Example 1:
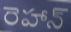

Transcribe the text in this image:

రెహాన్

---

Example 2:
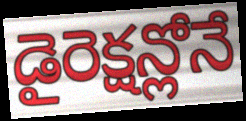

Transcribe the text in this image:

డైరెక్షన్లోనే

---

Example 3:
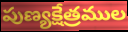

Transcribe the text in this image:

పుణ్యక్షేత్రముల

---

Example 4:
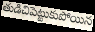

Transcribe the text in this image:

తుడిచిపెట్టుకుపోయిన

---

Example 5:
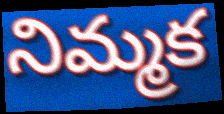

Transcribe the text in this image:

నిమ్మక